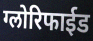
ग्लोरिफाईड